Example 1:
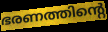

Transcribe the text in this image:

ഭരണത്തിന്റെ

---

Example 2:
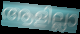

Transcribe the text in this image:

ആളില്ലാ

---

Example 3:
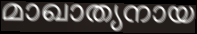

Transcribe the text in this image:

മാഖാത്യനായ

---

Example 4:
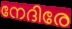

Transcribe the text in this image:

നേദിരേ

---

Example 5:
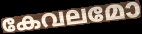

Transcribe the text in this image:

കേവലമോ